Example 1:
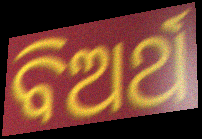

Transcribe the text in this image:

ବିଅର୍ଥ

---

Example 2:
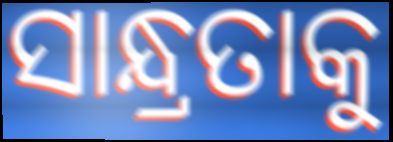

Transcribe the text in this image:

ସାନ୍ଧ୍ରତାକୁ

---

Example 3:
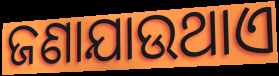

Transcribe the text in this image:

ଜଣାଯାଉଥାଏ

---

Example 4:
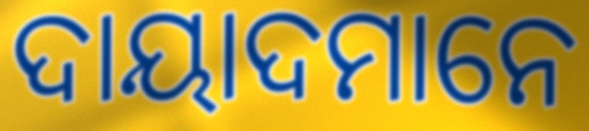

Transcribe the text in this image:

ଦାୟାଦମାନେ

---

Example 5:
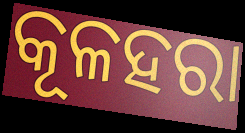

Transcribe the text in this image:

କୂଳହରା